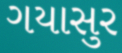
ગયાસુર